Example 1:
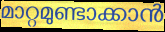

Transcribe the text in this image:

മാറ്റമുണ്ടാക്കാൻ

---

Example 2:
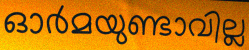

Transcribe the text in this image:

ഓർമയുണ്ടാവില്ല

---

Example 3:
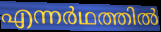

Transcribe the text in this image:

എന്നർഥത്തിൽ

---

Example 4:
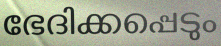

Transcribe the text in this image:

ഭേദിക്കപ്പെടും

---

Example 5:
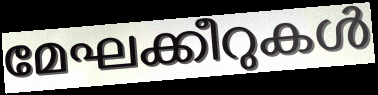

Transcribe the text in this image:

മേഘക്കീറുകൾ